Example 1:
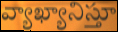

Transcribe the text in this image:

వ్యాఖ్యానిస్తూ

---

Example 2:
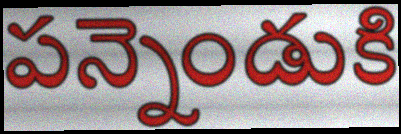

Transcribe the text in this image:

పన్నెండుకి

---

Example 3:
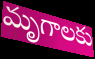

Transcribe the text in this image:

మృగాలకు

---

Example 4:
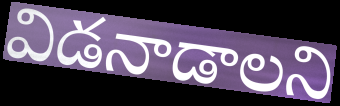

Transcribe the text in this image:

విడనాడాలని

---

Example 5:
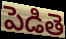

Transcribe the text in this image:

పెడితె